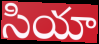
సియా